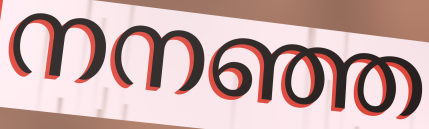
നനഞ്ഞ